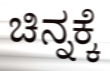
ಚಿನ್ನಕ್ಕೆ